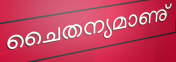
ചൈതന്യമാണു്